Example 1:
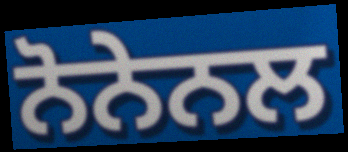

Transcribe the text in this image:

ਨੋਨੇਨਲ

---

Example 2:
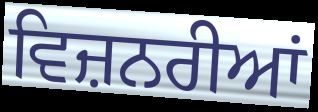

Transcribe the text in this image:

ਵਿਜ਼ਨਰੀਆਂ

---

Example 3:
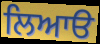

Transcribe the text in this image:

ਲਿਆੳ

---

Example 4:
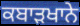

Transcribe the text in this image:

ਕਬਾੜਖਾਨੇ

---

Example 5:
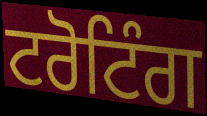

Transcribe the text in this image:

ਟਰੋਟਿੰਗ